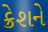
ક્રેશને